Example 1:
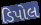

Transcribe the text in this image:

ડિપોલ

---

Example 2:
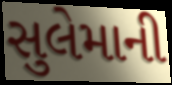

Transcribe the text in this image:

સુલેમાની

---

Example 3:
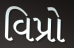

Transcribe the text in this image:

વિપ્રો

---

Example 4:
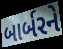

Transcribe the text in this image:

બાર્બરને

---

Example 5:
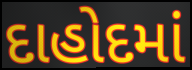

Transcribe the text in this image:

દાહોદમાં